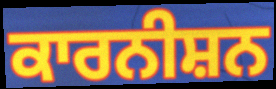
ਕਾਰਨੀਸ਼ਨ